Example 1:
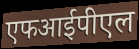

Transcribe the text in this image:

एफआईपीएल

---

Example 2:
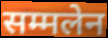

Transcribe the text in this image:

सम्मलेन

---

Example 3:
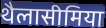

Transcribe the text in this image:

थैलासीमिया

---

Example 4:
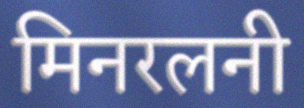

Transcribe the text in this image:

मिनरलनी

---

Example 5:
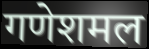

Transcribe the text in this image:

गणेशमल